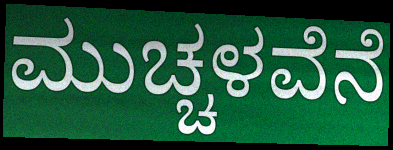
ಮುಚ್ಚಳವೆನೆ